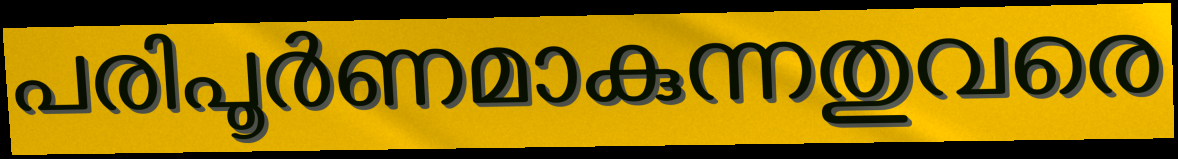
പരിപൂർണമാകുന്നതുവരെ